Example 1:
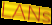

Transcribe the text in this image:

LANs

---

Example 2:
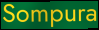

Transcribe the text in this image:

Sompura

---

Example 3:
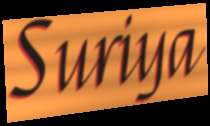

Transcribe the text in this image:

Suriya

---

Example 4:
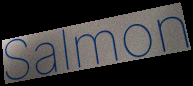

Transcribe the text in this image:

Salmon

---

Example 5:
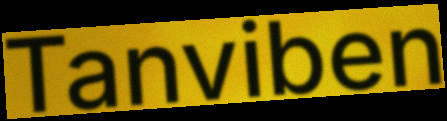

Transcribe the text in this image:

Tanviben